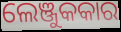
ଲେଞ୍ଜୁକକାର